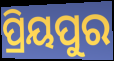
ପ୍ରିୟପୁର